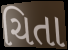
ચિતા